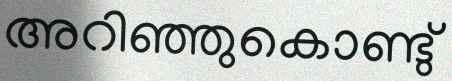
അറിഞ്ഞുകൊണ്ടു്